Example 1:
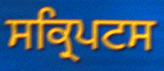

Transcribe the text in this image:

ਸਕ੍ਰਿਪਟਸ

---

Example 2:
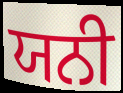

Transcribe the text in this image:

ਯਨੀ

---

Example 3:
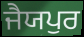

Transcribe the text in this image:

ਜੈਯਪੁਰ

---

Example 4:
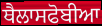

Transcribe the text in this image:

ਥੈਲਾਸਫੋਬੀਆ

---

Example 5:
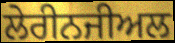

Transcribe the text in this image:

ਲੇਰੀਨਜੀਅਲ